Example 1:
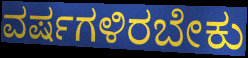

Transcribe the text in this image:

ವರ್ಷಗಳಿರಬೇಕು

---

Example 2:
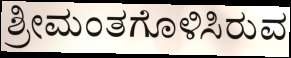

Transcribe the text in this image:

ಶ್ರೀಮಂತಗೊಳಿಸಿರುವ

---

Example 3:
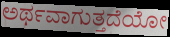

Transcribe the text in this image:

ಅರ್ಥವಾಗುತ್ತದೆಯೋ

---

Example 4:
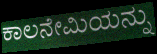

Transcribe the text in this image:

ಕಾಲನೇಮಿಯನ್ನು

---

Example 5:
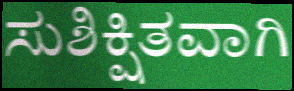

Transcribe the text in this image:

ಸುಶಿಕ್ಷಿತವಾಗಿ